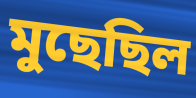
মুছেছিল